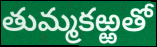
తుమ్మకఱ్ఱతో